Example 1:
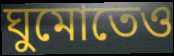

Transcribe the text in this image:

ঘুমোতেও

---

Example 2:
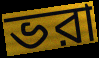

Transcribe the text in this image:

ভরা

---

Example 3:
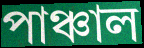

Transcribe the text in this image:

পাঞ্চাল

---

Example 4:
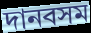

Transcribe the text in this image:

দানবসম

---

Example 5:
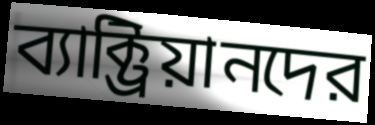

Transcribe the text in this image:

ব্যাক্ট্রিয়ানদের